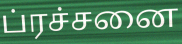
ப்ரச்சனை